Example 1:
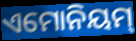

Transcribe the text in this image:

ଏମୋନିୟମ୍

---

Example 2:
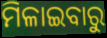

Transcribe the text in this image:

ମିଳାଇବାରୁ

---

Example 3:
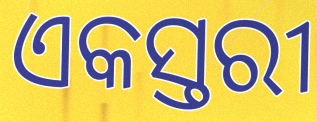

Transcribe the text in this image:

ଏକସ୍ତରୀ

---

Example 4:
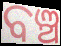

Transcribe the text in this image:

ବଞ୍ଚ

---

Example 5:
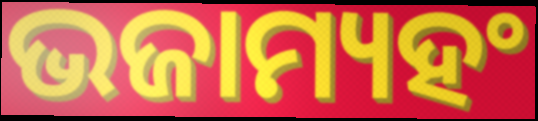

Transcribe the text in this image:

ଭଜାମ୍ୟହଂ